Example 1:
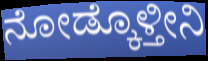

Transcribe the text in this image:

ನೋಡ್ಕೊಳ್ತೀನಿ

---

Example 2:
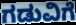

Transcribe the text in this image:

ಗಡುವಿಗೆ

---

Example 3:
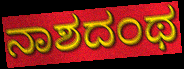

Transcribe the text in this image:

ನಾಶದಂಥ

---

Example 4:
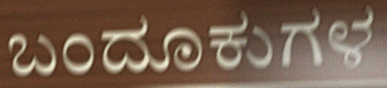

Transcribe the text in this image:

ಬಂದೂಕುಗಳ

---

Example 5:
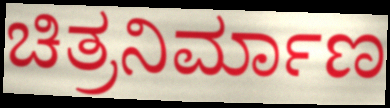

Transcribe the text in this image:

ಚಿತ್ರನಿರ್ಮಾಣ